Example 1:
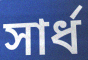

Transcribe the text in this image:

সার্ধ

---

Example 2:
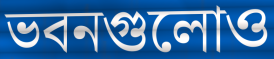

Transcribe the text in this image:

ভবনগুলোও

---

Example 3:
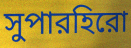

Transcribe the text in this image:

সুপারহিরো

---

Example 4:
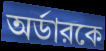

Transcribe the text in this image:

অর্ডারকে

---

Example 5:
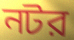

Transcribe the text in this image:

নটর